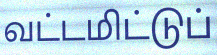
வட்டமிட்டுப்